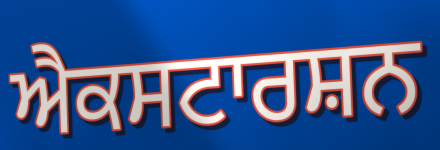
ਐਕਸਟਾਰਸ਼ਨ